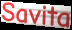
Savita